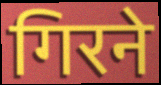
गिरने